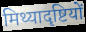
मिथ्यादृष्टियों